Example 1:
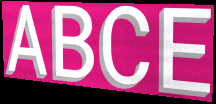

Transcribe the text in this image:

ABCE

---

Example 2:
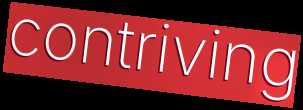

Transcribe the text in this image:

contriving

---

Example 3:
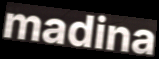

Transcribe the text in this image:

madina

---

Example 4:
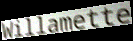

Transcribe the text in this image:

Willamette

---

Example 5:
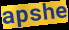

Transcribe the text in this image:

apshe